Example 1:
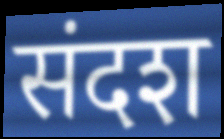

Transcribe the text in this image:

संदश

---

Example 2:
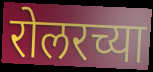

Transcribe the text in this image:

रोलरच्या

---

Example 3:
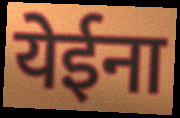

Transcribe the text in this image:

येईना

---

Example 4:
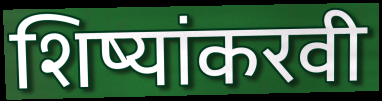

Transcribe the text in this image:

शिष्यांकरवी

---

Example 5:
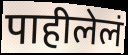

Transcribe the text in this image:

पाहीलेलं